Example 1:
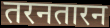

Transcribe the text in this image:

तरनतारन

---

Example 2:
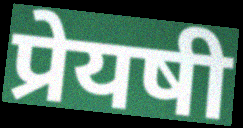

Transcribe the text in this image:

प्रेयषी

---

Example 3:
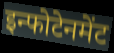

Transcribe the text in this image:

इन्फोटेनमेंट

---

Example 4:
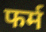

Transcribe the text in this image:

फर्म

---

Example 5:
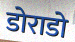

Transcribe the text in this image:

डोराडो